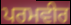
ਪਰਮਵੀਰ